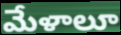
మేళాలూ